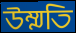
উম্মতি